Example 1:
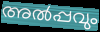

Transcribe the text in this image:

അൽപ്പവും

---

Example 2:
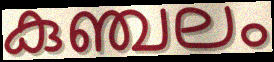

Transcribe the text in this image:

കുഞ്ചലം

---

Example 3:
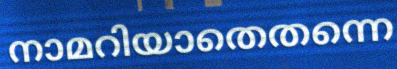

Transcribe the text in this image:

നാമറിയാതെതന്നെ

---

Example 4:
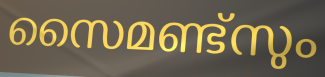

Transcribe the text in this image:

സൈമണ്ട്സും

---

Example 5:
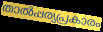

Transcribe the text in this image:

താൽപ്പര്യപ്രകാരം